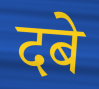
दबे